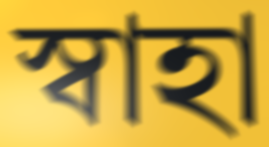
স্বাহা